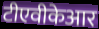
टीएवीकेआर